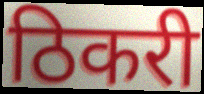
ठिकरी